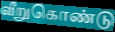
வீறுகொண்டு